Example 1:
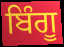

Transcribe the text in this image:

ਬਿੰਗੂ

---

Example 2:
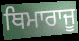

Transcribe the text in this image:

ਥਿਮਾਰਾਜੂ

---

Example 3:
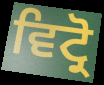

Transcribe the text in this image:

ਵਿਟ੍ਰੋ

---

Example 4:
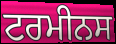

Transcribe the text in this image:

ਟਰਮੀਨਸ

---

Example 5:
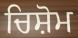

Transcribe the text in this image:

ਚਿਸ਼ੋਮ